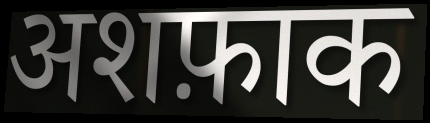
अशफ़ाक